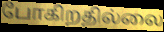
போகிறதில்லை